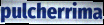
pulcherrima